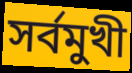
সর্বমুখী